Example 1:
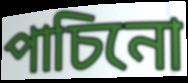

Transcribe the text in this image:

পাচিনো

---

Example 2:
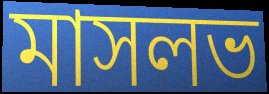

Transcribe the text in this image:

মাসলভ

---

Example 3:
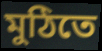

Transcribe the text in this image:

মুঠিতে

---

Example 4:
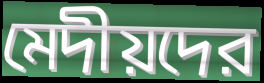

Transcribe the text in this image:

মেদীয়দের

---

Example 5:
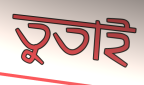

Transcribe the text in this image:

তুতাই